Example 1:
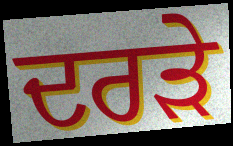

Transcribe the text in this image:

ਦਰੜੇ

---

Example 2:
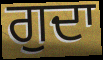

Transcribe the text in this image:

ਗੁਦਾ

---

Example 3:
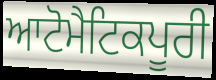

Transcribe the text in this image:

ਆਟੋਮੈਟਿਕਪੂਰੀ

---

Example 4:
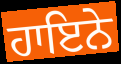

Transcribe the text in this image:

ਹਾਇਨੇ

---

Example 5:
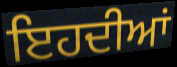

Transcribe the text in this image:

ਇਹਦੀਆਂ